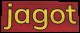
jagot